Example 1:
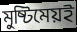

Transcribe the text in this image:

মুষ্টিমেয়ই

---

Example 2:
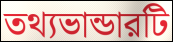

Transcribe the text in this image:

তথ্যভান্ডারটি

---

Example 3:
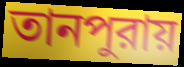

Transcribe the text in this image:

তানপুরায়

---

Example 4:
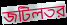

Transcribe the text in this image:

জটিলতর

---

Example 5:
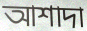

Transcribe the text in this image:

আশাদা